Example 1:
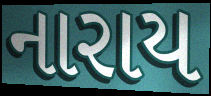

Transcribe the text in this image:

નારાય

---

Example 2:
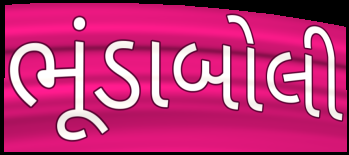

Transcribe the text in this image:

ભૂંડાબોલી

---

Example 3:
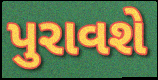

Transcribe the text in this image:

પુરાવશે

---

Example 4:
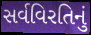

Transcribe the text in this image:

સર્વવિરતિનું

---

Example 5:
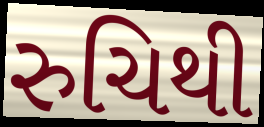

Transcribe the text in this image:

રુચિથી